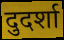
दुदर्शा